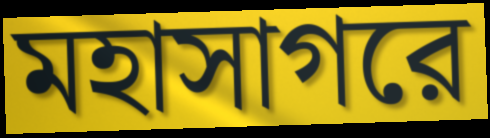
মহাসাগরে